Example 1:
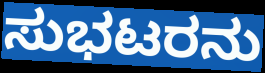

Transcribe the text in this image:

ಸುಭಟರನು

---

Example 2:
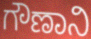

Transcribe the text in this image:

ಗೌಣಾನಿ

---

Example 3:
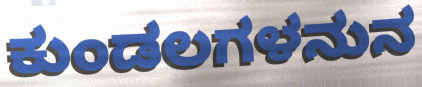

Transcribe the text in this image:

ಕುಂಡಲಗಳನುನ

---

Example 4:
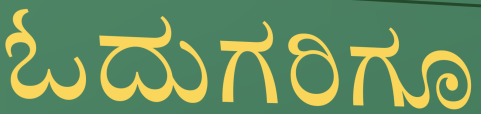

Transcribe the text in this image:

ಓದುಗರಿಗೂ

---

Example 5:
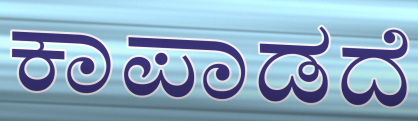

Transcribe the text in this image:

ಕಾಪಾಡದೆ